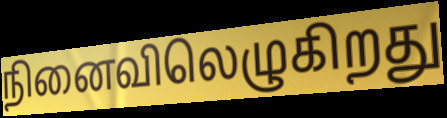
நினைவிலெழுகிறது